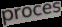
proces